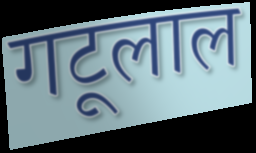
गटूलाल